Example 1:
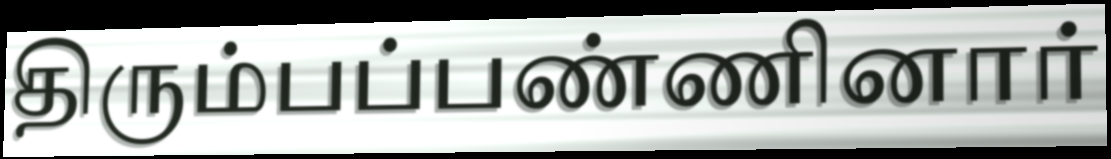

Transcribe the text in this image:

திரும்பப்பண்ணினார்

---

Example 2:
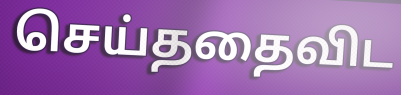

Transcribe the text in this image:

செய்ததைவிட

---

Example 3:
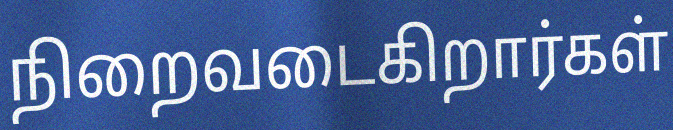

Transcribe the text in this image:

நிறைவடைகிறார்கள்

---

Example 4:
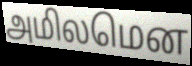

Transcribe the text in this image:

அமிலமென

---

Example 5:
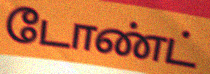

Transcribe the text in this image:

டோண்ட்